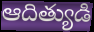
ఆదిత్యుడి